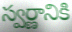
స్వర్ణానికి